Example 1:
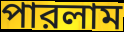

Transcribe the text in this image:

পারলাম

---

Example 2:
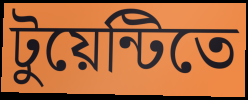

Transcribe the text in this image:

টুয়েন্টিতে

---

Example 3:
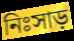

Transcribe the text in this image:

নিঃসাড়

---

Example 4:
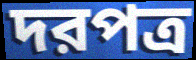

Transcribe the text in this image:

দরপত্র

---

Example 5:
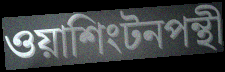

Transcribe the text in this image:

ওয়াশিংটনপন্থী